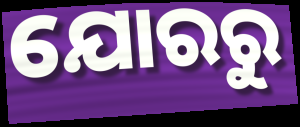
ଯୋରରୁ